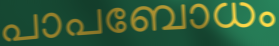
പാപബോധം